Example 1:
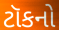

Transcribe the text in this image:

ટૉકનો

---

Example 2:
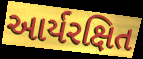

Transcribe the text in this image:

આર્યરક્ષિત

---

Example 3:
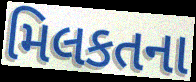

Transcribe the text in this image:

મિલકતના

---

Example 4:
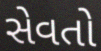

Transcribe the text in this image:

સેવતો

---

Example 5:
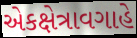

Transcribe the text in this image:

એકક્ષેત્રાવગાહે